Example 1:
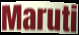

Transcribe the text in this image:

Maruti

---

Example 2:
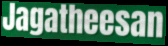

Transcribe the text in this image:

Jagatheesan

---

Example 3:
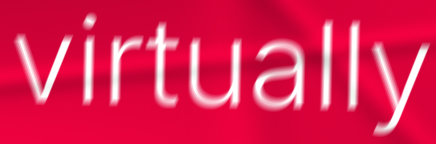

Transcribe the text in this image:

virtually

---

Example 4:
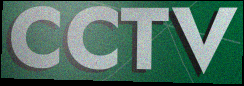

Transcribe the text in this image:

CCTV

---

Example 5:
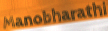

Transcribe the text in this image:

Manobharathi